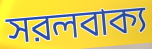
সরলবাক্য